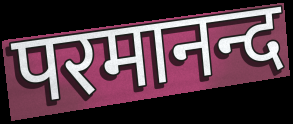
परमानन्‍द